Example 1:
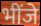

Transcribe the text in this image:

भींजे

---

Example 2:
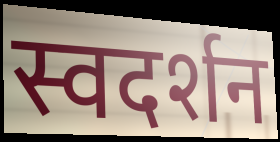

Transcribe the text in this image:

स्वदर्शन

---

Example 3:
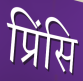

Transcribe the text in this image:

प्रिंसि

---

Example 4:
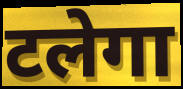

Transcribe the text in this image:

टलेगा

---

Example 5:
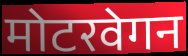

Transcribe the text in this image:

मोटरवेगन